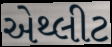
એથ્લીટ